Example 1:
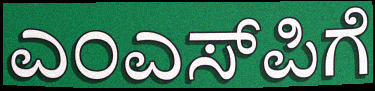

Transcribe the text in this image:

ಎಂಎಸ್‌ಪಿಗೆ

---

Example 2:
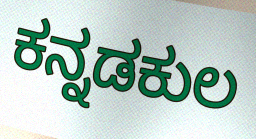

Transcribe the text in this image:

ಕನ್ನಡಕುಲ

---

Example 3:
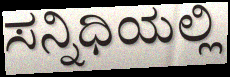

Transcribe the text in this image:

ಸನ್ನಿಧಿಯಲ್ಲಿ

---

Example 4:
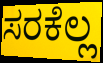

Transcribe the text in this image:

ಸರಕೆಲ್ಲ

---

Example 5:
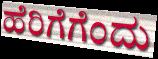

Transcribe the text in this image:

ಹೆರಿಗೆಗೆಂದು